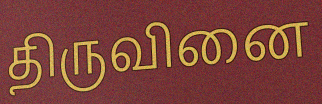
திருவினை